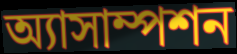
অ্যাসাম্পশন